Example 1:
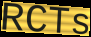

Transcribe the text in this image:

RCTs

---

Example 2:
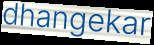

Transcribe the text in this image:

dhangekar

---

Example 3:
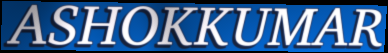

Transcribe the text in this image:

ASHOKKUMAR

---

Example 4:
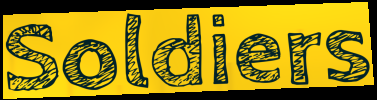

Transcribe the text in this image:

Soldiers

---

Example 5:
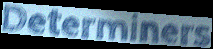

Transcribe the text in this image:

Determiners